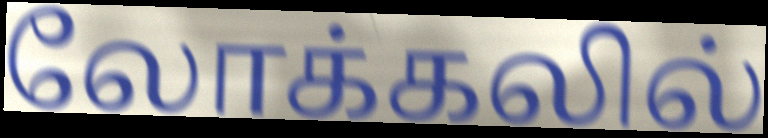
லோக்கலில்